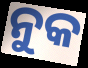
ନୁକ